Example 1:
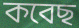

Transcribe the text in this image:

কবেছ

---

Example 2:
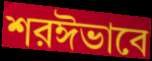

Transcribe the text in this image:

শরঈভাবে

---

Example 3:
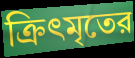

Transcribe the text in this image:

ক্রিৎমৃতের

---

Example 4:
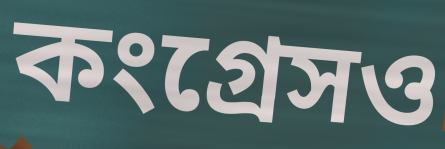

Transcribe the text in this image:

কংগ্রেসও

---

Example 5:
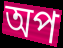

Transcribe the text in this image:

অপ